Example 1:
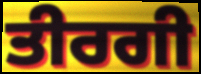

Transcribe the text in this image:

ਤੀਰਗੀ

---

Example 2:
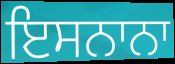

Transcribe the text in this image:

ਇਸਨਾਨਾ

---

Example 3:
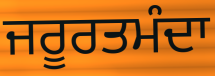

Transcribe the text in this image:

ਜਰੂਰਤਮੰਦਾ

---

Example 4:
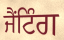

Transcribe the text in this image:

ਜੈਂਟਿੰਗ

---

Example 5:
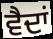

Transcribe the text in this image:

ਵੈਦਾਂ